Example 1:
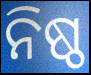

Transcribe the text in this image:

ନିଷ୍ଠ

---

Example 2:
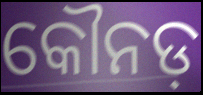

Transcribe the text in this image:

କୌନଡ଼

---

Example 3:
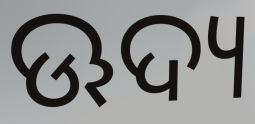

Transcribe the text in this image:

ଊଦ୍ୟ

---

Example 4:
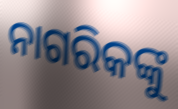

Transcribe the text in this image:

ନାଗରିକଙ୍କୁ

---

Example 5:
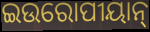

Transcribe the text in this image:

ଇଉରୋପୀୟାନ୍